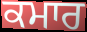
ਕਮਾਰ